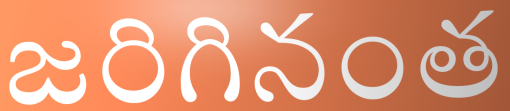
జరిగినంత